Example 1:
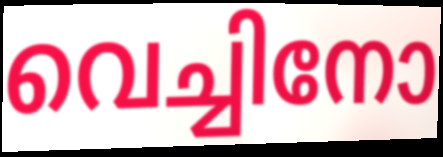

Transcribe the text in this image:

വെച്ചിനോ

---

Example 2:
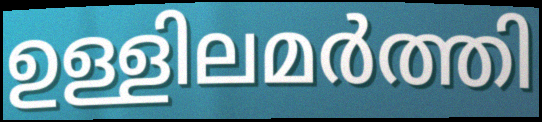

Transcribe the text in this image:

ഉള്ളിലമർത്തി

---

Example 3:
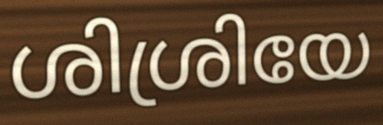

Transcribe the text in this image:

ശിശ്രിയേ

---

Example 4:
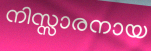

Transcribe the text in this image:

നിസ്സാരനായ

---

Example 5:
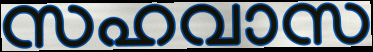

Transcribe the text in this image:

സഹവാസ